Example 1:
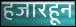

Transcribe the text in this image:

हजारहून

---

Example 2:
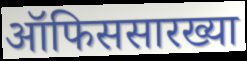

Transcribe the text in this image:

ऑफिससारख्या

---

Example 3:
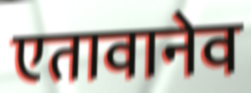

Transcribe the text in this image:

एतावानेव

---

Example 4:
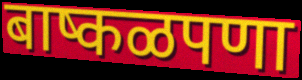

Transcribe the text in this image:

बाष्कळपणा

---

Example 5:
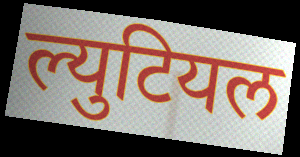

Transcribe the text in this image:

ल्युटियल